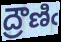
ద్రౌణిఁ